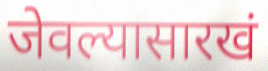
जेवल्यासारखं